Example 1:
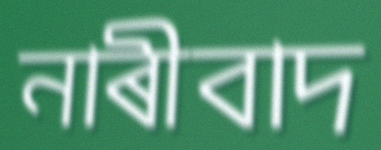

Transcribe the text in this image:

নাৰীবাদ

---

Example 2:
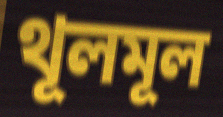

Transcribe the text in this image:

থূলমূল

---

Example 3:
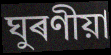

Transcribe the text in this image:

ঘুৰণীয়া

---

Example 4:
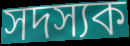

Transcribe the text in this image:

সদস্যক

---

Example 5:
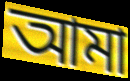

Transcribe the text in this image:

আমা